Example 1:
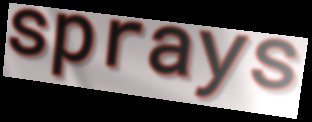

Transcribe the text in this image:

sprays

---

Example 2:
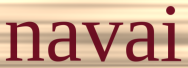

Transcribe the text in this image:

navai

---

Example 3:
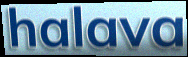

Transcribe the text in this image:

halava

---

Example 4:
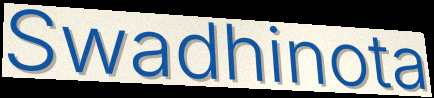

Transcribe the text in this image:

Swadhinota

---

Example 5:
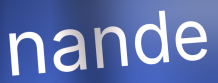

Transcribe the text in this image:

nande